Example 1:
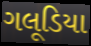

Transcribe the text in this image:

ગલૂડિયા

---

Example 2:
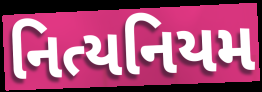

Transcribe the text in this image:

નિત્યનિયમ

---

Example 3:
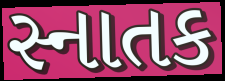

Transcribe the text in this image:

સ્નાતક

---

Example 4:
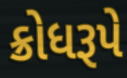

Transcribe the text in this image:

ક્રોધરૂપે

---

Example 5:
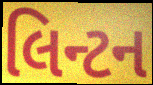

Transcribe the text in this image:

લિન્ટન